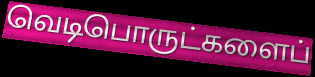
வெடிபொருட்களைப்